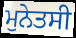
ਮੁਨੇਤਸੀ